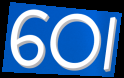
ଠୋ